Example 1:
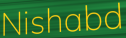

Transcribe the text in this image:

Nishabd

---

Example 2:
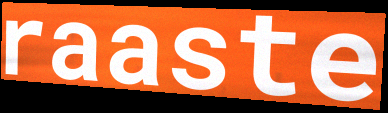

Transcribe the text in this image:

raaste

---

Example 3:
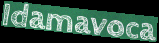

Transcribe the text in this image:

Idamavoca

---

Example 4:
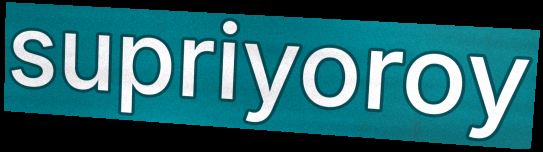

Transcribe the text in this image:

supriyoroy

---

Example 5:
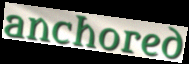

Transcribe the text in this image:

anchored